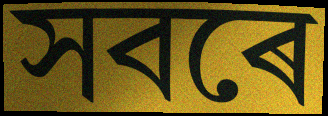
সবৰে